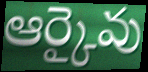
ఆర్కైవు